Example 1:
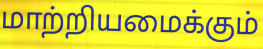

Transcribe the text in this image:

மாற்றியமைக்கும்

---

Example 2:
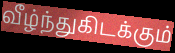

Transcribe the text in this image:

வீழ்ந்துகிடக்கும்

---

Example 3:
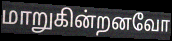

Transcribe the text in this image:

மாறுகின்றனவோ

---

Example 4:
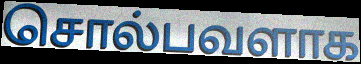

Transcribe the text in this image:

சொல்பவளாக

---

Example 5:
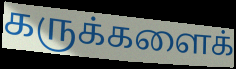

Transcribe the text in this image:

கருக்களைக்